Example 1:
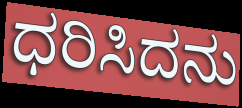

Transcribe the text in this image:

ಧರಿಸಿದನು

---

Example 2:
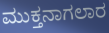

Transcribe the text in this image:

ಮುಕ್ತನಾಗಲಾರ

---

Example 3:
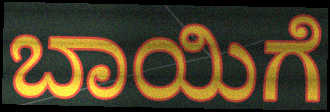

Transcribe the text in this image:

ಬಾಯಿಗೆ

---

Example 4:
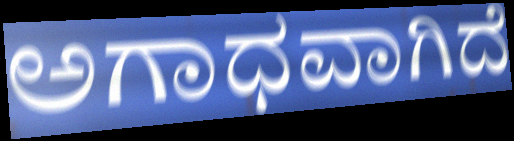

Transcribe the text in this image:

ಅಗಾಧವಾಗಿದೆ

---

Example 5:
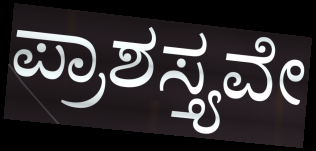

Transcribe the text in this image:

ಪ್ರಾಶಸ್ತ್ಯವೇ